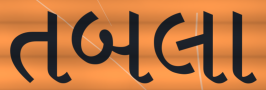
તબલા